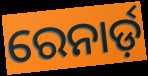
ରେନାର୍ଡ଼